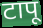
टापू